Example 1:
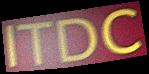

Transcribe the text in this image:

ITDC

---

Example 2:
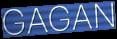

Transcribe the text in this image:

GAGAN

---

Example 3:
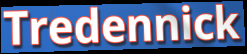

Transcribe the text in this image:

Tredennick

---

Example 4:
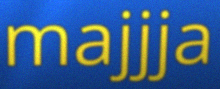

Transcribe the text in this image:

majjja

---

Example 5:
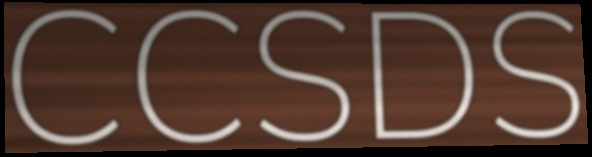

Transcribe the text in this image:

CCSDS